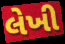
લેખી